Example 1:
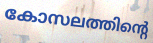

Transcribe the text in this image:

കോസലത്തിന്റെ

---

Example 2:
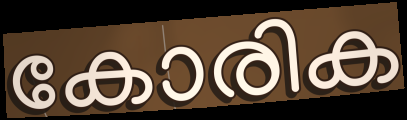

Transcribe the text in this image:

കോരിക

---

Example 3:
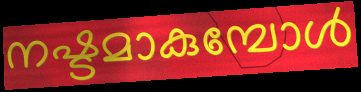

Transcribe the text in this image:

നഷ്ടമാകുമ്പോൾ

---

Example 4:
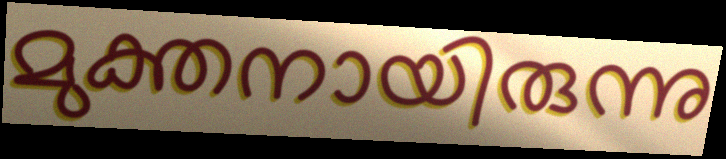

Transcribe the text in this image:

മുക്തനായിരുന്നു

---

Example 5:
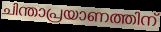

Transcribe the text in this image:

ചിന്താപ്രയാണത്തിന്